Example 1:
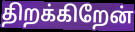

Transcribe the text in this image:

திறக்கிறேன்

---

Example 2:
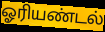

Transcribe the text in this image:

ஓரியண்டல்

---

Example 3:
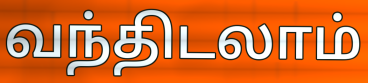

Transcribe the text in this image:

வந்திடலாம்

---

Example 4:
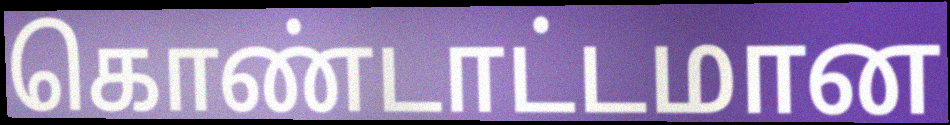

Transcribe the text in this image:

கொண்டாட்டமான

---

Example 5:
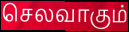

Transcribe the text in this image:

செலவாகும்